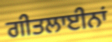
ਗੀਤਲਾਈਨਾਂ